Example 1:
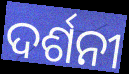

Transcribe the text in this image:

ଦର୍ଶନୀ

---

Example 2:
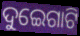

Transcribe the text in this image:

ଦୁଇେଗାଟି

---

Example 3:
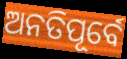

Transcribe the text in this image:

ଅନତିପୂର୍ବେ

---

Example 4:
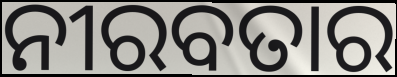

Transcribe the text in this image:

ନୀରବତାର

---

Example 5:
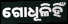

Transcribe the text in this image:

ଗୋଧୂଳିହିଁ